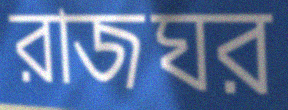
রাজঘর